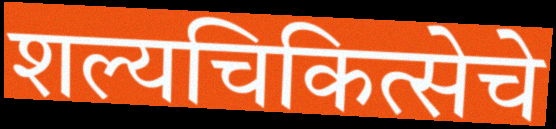
शल्यचिकित्सेचे